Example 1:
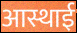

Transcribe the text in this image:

आस्थाई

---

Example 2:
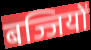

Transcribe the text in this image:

बज्जियों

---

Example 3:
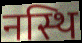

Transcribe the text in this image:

नस्थि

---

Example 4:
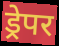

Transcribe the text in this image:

ड्रेपर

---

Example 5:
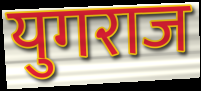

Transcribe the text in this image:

युगराज